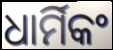
ଧାର୍ମିକଂ